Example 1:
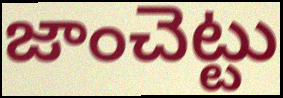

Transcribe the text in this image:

జాంచెట్టు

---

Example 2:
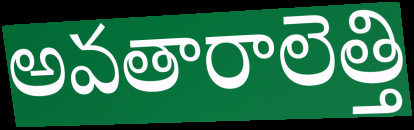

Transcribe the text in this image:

అవతారాలెత్తి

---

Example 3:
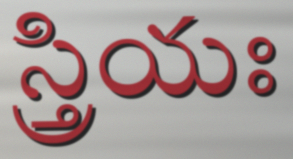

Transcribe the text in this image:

స్త్రియః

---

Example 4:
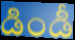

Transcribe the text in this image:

డిండీ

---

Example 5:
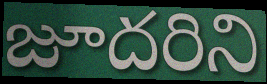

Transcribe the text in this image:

జూదరిని